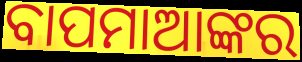
ବାପମାଆଙ୍କର